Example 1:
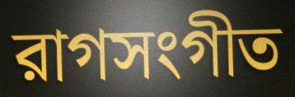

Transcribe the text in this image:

রাগসংগীত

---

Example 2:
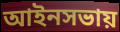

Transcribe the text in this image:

আইনসভায়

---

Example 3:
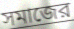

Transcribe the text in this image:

সমাজের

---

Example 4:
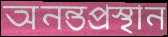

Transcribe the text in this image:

অনন্তপ্রস্থান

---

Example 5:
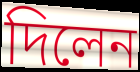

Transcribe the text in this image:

দিলেন